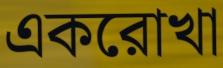
একরোখা